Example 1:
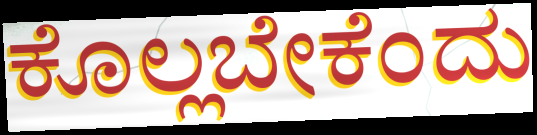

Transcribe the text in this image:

ಕೊಲ್ಲಬೇಕೆಂದು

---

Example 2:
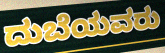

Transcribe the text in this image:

ದುಬೆಯವರು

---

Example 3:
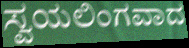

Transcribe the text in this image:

ಸ್ವಯಲಿಂಗವಾದ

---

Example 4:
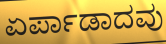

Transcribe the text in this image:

ಏರ್ಪಾಡಾದವು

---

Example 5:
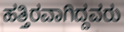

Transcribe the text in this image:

ಹತ್ತಿರವಾಗಿದ್ದವರು